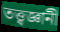
তত্ত্বজ্ঞানী